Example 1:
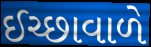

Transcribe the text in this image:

ઈચ્છાવાળે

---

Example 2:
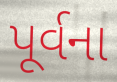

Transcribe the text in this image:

પૂર્વના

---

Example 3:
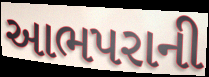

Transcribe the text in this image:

આભપરાની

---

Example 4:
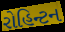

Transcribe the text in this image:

રોહિન્ટન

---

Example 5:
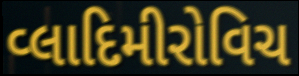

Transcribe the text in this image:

વ્લાદિમીરોવિચ